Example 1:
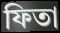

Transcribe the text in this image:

ফিতা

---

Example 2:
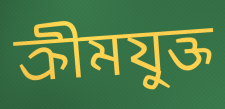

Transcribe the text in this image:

ক্ৰীমযুক্ত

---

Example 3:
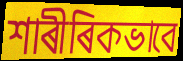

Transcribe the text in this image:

শাৰীৰিকভাবে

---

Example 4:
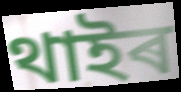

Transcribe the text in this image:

থাইৰ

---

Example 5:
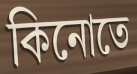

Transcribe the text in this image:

কিনোতে